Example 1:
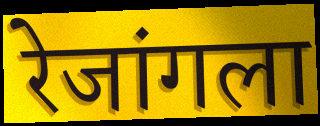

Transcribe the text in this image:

रेजांगला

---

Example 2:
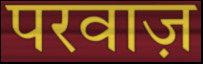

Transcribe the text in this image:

परवाज़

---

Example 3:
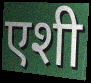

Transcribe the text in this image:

एशी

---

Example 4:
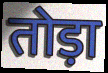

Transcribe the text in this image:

तोड़ा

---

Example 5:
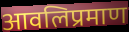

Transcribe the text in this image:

आवलिप्रमाण